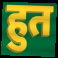
हुत